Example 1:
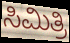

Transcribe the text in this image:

ಸಿಮಿತ್ರಿ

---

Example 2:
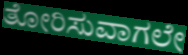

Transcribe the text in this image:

ತೋರಿಸುವಾಗಲೇ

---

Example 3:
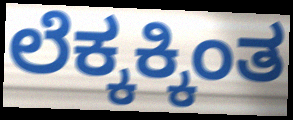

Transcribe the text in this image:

ಲೆಕ್ಕಕ್ಕಿಂತ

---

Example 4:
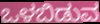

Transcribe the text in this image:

ಒಳಬಿಡುವ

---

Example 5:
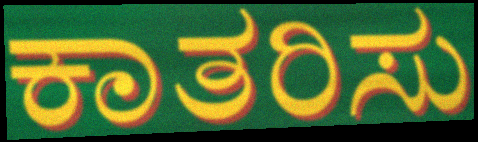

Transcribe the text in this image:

ಕಾತರಿಸು